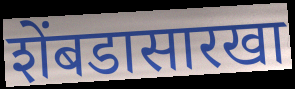
शेंबडासारखा